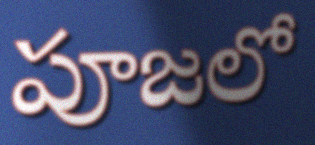
పూజలో